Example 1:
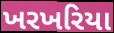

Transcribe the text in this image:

ખરખરિયા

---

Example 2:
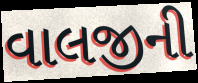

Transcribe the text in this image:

વાલજીની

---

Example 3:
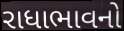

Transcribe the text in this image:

રાધાભાવનો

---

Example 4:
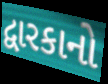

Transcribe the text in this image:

દ્વારકાનો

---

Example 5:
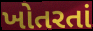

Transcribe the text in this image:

ખોતરતાં